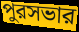
পুরসভার